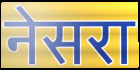
नेसरा